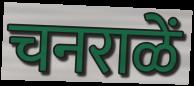
चनराळें